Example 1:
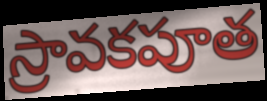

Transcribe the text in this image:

స్రావకపూత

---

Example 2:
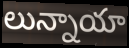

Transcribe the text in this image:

లున్నాయా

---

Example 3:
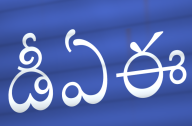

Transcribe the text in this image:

డీఏఈ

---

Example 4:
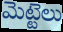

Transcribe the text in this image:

మెట్టెలు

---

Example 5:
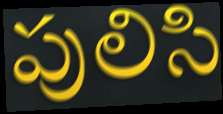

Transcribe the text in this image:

పులిసి